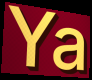
Ya